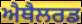
ਐਥੈਲਰਡ